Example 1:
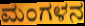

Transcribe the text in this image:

ಮಂಗಳನ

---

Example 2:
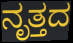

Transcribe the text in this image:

ನೃತ್ತದ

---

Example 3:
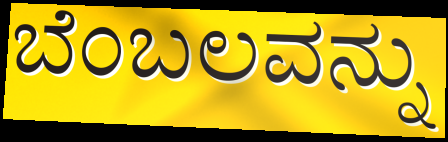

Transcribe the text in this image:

ಬೆಂಬಲವನ್ನು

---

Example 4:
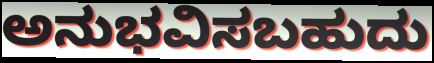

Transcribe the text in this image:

ಅನುಭವಿಸಬಹುದು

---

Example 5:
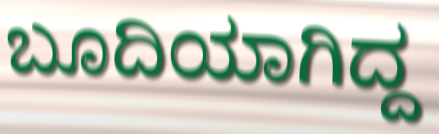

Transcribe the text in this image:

ಬೂದಿಯಾಗಿದ್ದ